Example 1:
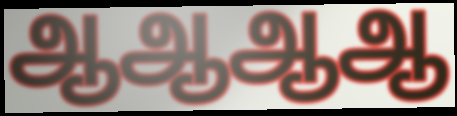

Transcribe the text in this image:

ஆஆஆஆ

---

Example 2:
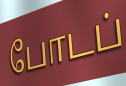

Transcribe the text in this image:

போடப்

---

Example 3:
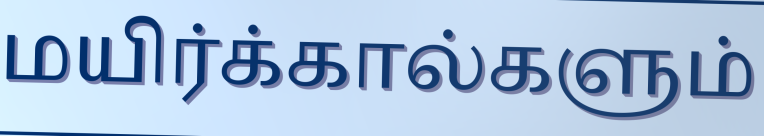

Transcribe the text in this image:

மயிர்க்கால்களும்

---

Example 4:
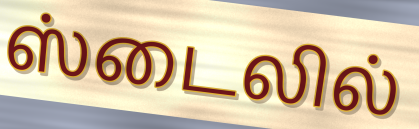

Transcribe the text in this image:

ஸ்டைலில்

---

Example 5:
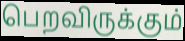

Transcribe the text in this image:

பெறவிருக்கும்